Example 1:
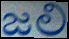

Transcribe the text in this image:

జలి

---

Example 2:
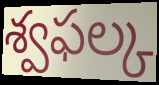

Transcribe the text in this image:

శ్వఫల్క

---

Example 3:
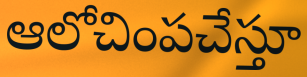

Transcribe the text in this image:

ఆలోచింపచేస్తూ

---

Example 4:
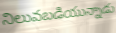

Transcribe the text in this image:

నిలువబడియున్నాడు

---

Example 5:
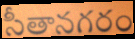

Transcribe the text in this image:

సీతానగరం